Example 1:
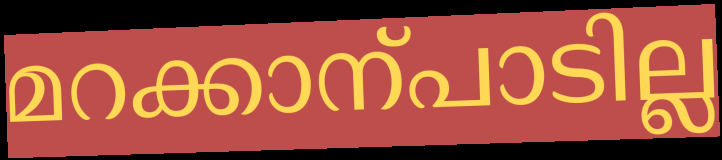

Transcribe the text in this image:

മറക്കാന്പാടില്ല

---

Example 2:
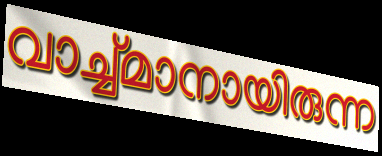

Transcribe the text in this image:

വാച്ച്മാനായിരുന്ന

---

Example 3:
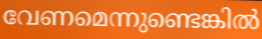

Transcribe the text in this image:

വേണമെന്നുണ്ടെങ്കിൽ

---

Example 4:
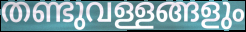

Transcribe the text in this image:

തണ്ടുവള്ളങ്ങളും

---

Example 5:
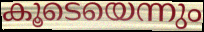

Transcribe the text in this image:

കൂടെയെന്നും